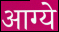
आग्ये